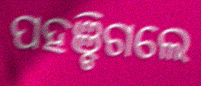
ପହଞ୍ଚିଗଲେ